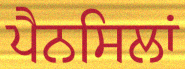
ਪੈਨਸਿਲਾਂ